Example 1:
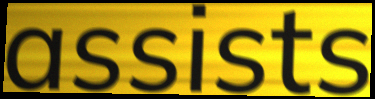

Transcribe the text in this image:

assists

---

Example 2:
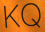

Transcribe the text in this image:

KQ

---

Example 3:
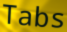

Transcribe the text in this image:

Tabs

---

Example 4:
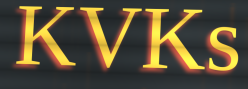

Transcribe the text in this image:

KVKs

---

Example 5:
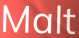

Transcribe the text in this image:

Malt